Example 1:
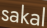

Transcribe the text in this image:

sakal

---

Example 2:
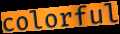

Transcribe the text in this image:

colorful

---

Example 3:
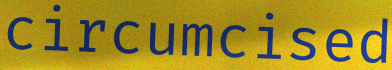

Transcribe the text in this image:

circumcised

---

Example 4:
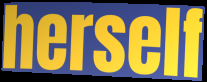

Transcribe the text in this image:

herself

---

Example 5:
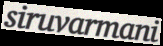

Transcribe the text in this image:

siruvarmani